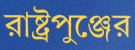
রাষ্ট্রপুঞ্জের